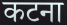
कटना